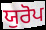
ਯੁਰੋਪ